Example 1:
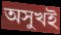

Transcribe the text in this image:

অসুখই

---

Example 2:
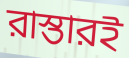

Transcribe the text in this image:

রাস্তারই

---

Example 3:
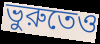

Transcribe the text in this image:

ভুরুতেও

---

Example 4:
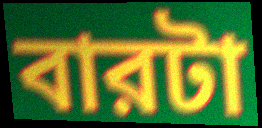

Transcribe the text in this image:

বারটা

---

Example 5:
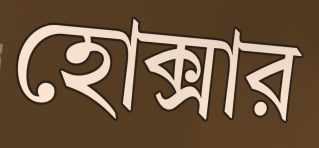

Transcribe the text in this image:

হোক্সার